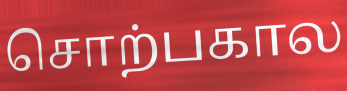
சொற்பகால